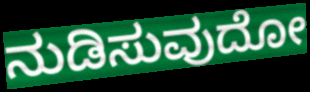
ನುಡಿಸುವುದೋ